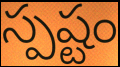
స్పష్టం